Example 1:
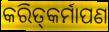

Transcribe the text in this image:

କରିତ୍‌କର୍ମାପଣ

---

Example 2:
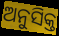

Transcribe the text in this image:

ଅନୁସିକ୍ତ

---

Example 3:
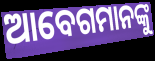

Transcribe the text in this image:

ଆବେଗମାନଙ୍କୁ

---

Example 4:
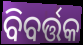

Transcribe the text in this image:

ବିବର୍ତ୍ତକ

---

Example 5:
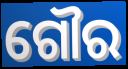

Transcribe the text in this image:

ଗୌର